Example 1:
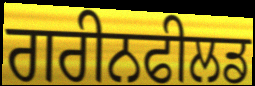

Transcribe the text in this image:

ਗਰੀਨਫੀਲਡ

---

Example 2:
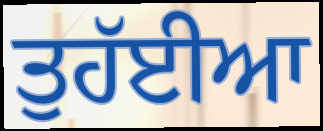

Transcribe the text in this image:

ਤੁਹੱਈਆ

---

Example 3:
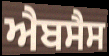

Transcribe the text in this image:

ਐਬਸੈਸ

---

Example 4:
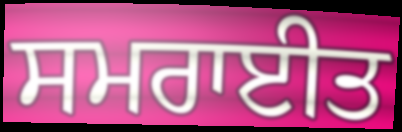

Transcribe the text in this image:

ਸਮਰਾਈਤ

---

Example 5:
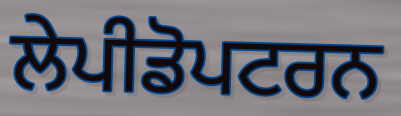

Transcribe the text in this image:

ਲੇਪੀਡੋਪਟਰਨ